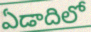
ఏడాదిలో